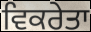
ਵਿਕਰੇਤਾ